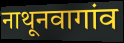
नाथूनवागांव